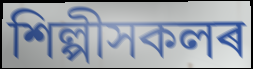
শিল্পীসকলৰ